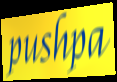
pushpa